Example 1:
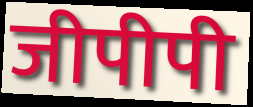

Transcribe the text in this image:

जीपीपी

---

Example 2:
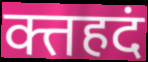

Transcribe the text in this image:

क्तहदं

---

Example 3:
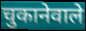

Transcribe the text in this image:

चुकानेवाले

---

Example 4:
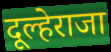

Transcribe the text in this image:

दूल्हेराजा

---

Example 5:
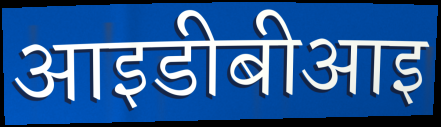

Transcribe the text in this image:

आइडीबीआइ